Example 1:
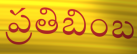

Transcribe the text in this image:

ప్రతిబింబ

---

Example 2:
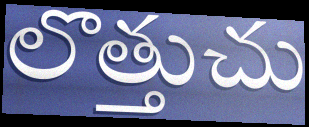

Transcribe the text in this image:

లొత్తుచు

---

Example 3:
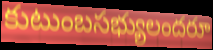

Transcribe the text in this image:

కుటుంబసభ్యులందరూ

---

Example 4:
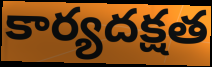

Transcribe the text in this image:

కార్యదక్షత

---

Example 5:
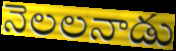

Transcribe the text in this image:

నెలలనాడు